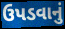
ઉપડવાનું